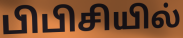
பிபிசியில்